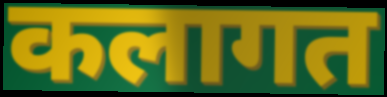
कलागत